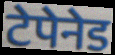
टेपेनेड